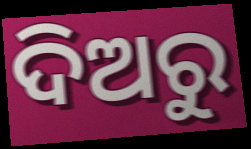
ଦିଅରୁ